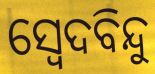
ସ୍ଵେଦବିନ୍ଦୁ